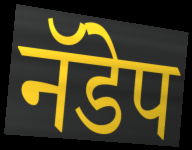
नॅडेप